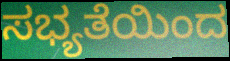
ಸಭ್ಯತೆಯಿಂದ